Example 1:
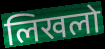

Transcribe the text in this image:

लिखलो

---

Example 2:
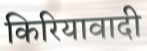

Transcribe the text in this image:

किरियावादी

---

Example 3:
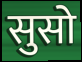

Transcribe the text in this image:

सुसो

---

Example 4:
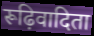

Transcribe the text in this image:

रूढ़िवादिता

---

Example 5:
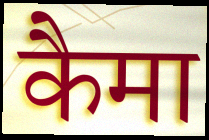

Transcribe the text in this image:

कैमा